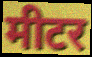
मीटर